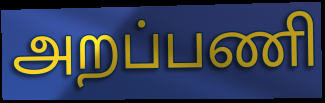
அறப்பணி